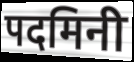
पदमिनी